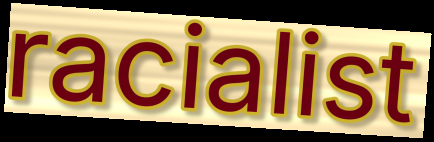
racialist